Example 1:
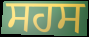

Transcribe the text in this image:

ਸਹਸ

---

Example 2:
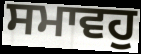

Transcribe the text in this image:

ਸਮਾਵਹੁ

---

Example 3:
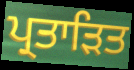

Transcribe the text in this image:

ਪ੍ਰਤਾੜਿਤ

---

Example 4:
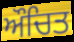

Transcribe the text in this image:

ਔਚਿਤ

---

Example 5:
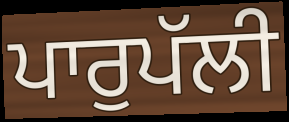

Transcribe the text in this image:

ਪਾਰੁਪੱਲੀ